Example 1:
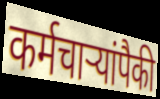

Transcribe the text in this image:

कर्मचाऱ्यांपैकी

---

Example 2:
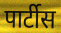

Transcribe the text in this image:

पार्टीस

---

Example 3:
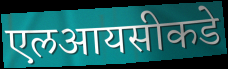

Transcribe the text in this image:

एलआयसीकडे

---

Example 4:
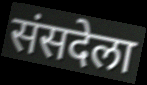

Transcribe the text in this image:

संसदेला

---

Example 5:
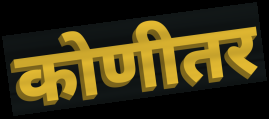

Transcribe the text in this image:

कोणीतर